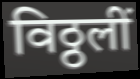
विठ्ठलीं